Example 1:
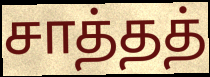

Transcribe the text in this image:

சாத்தத்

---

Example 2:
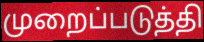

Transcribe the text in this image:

முறைப்படுத்தி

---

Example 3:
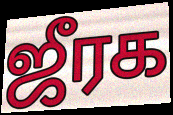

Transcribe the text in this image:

ஜீரக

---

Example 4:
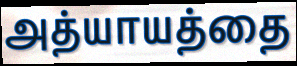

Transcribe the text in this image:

அத்யாயத்தை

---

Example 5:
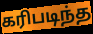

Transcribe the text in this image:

கரிபடிந்த